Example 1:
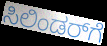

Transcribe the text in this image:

ಸಿಲಿಂಡರ್‌ಗೆ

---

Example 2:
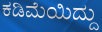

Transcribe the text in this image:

ಕಡಿಮೆಯಿದ್ದು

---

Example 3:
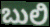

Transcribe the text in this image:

ಬುಲಿ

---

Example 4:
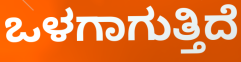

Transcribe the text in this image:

ಒಳಗಾಗುತ್ತಿದೆ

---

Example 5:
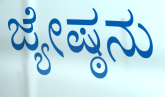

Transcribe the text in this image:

ಜ್ಯೇಷ್ಠನು